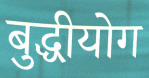
बुद्धीयोग